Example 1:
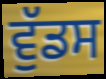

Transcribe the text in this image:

ਵੁੱਡਸ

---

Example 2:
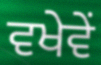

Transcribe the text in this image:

ਵਖੇਵੇਂ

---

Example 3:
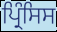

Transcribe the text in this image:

ਪ੍ਰਿੰਸਿਸ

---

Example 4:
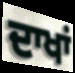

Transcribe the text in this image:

ਦਾਖਾਂ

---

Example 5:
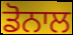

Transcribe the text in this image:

ਡੋਨਾਲ